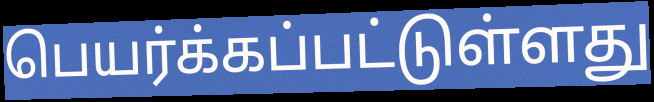
பெயர்க்கப்பட்டுள்ளது